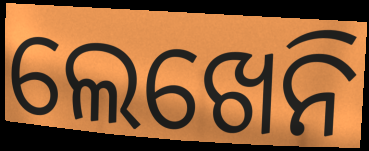
ଲେଖେନି